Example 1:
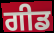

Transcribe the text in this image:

ਗੀਡ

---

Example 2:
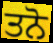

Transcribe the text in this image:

ਤਨੋ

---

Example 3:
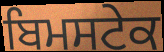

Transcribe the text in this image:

ਬਿਮਸਟੇਕ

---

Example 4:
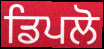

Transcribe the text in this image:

ਡਿਪਲੋ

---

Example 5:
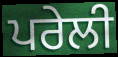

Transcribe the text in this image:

ਪਰੇਲੀ